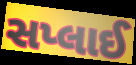
સપ્લાઈ